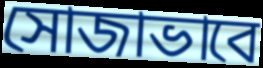
সোজাভাবে